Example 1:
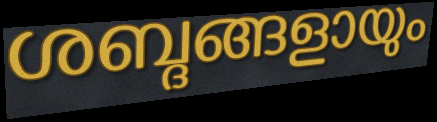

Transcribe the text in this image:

ശബ്ദങ്ങളായും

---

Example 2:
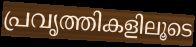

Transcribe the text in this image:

പ്രവൃത്തികളിലൂടെ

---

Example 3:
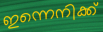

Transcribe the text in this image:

ഇന്നെനിക്ക്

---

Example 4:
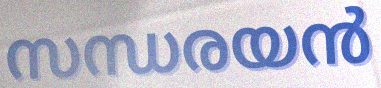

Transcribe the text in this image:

സന്ധരയൻ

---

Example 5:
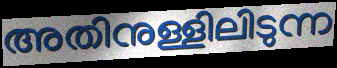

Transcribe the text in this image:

അതിനുള്ളിലിടുന്ന